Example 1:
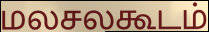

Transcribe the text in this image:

மலசலகூடம்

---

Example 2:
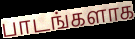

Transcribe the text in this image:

பாடங்களாக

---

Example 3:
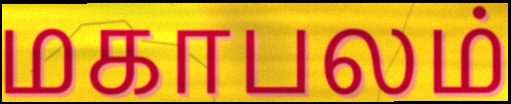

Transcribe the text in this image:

மகாபலம்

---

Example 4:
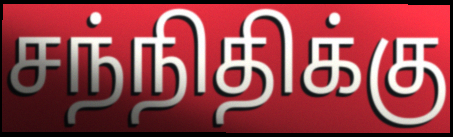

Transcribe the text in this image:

சந்நிதிக்கு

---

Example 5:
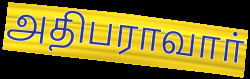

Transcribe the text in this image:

அதிபராவார்